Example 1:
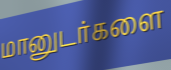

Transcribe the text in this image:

மானுடர்களை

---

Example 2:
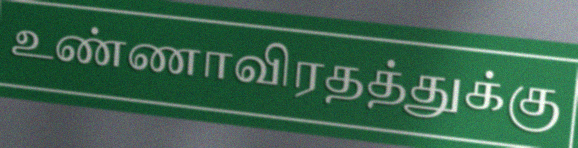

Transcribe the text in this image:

உண்ணாவிரதத்துக்கு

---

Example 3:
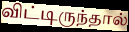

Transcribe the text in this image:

விட்டிருந்தால்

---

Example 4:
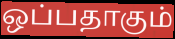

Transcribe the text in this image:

ஒப்பதாகும்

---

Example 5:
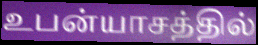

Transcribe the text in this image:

உபன்யாசத்தில்